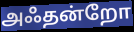
அஃதன்றோ